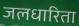
जलधारिता